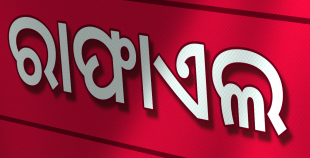
ରାଫାଏଲ